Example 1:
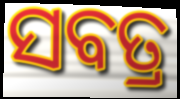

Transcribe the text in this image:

ସବତ୍ର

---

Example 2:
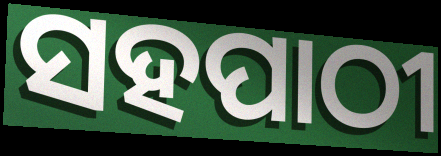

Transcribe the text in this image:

ସହପାଠୀ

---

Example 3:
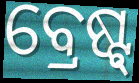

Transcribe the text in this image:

ବ୍ରେଷ୍ଟ୍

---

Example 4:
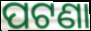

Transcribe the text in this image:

ପଟଣା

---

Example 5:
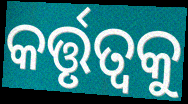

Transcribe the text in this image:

କର୍ତ୍ତୃତ୍ୱକୁ